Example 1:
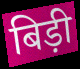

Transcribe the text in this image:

बिड़ी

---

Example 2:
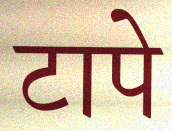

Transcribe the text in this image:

टापे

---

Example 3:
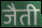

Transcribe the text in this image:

जैती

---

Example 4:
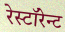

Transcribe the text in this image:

रेस्टॉरेन्ट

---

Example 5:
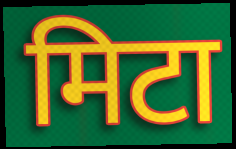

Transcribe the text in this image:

मिटा